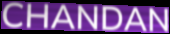
CHANDAN